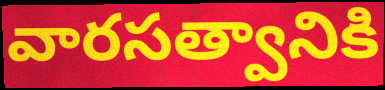
వారసత్వానికి